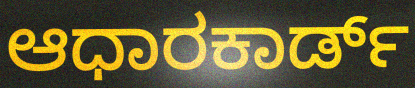
ಆಧಾರಕಾರ್ಡ್